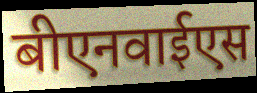
बीएनवाईएस